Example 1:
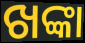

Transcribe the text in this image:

ଖଙ୍କା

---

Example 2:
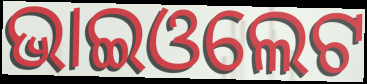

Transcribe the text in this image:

ଭାଇଓଲେଟ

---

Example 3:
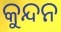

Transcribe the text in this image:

କୁନ୍ଦନ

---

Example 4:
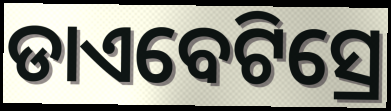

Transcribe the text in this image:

ଡାଏବେଟିସ୍ରେ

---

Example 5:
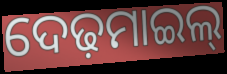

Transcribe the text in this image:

ଦେଢ଼ମାଇଲ୍